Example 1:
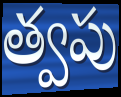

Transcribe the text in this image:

త్వపు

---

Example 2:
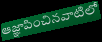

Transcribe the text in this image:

ఆజ్ఞాపించినవాటిలో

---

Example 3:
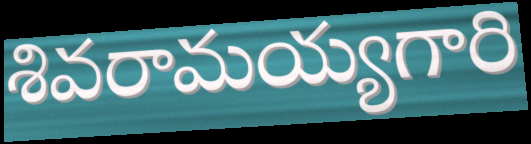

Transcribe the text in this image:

శివరామయ్యగారి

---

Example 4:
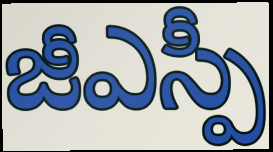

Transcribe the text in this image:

జీఎస్పీ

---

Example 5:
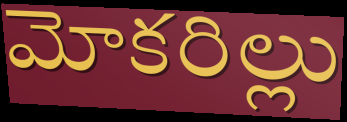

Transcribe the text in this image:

మోకరిల్లు